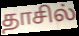
தாசில்